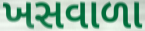
ખસવાળા